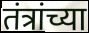
तंत्रांच्या